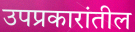
उपप्रकारांतील